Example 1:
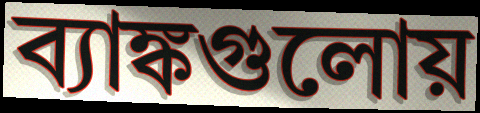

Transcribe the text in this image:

ব্যাঙ্কগুলোয়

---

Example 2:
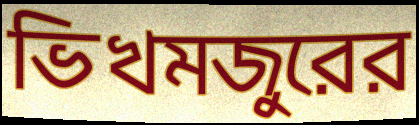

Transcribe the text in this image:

ভিখমজুরের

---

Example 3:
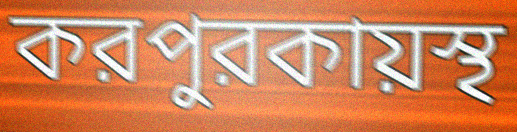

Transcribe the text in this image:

করপুরকায়স্থ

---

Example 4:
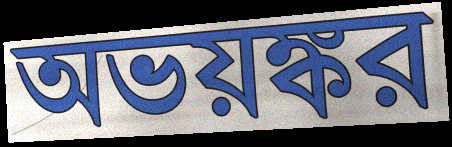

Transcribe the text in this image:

অভয়ঙ্কর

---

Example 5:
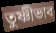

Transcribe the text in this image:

তুষ্ণীভাব